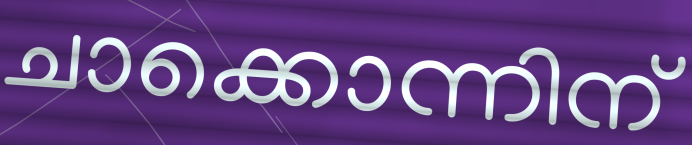
ചാക്കൊന്നിന്